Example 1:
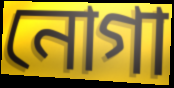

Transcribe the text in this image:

নোগা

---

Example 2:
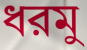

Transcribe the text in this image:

ধরমু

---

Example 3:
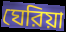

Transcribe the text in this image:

ঘেরিয়া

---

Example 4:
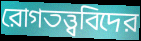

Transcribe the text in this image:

রোগতত্ত্ববিদের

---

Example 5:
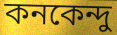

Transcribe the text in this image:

কনকেন্দু